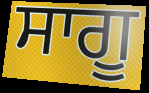
ਸਾਗੂ